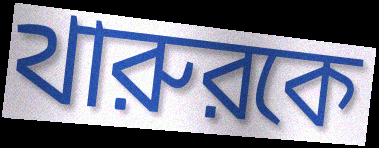
থারুরকে